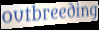
outbreeding